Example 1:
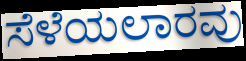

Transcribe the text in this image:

ಸೆಳೆಯಲಾರವು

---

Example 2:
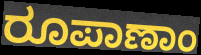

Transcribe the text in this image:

ರೂಪಾಣಾಂ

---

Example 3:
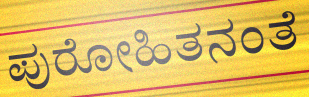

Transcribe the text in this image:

ಪುರೋಹಿತನಂತೆ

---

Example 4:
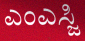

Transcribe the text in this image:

ಎಂಎಸ್ಜಿ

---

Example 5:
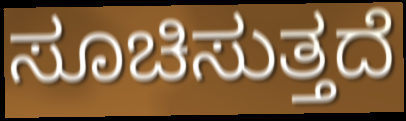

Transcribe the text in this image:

ಸೂಚಿಸುತ್ತದೆ